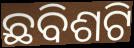
ଛବିଶଟି